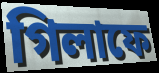
গিলাফে